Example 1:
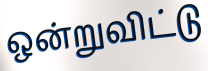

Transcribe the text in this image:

ஒன்றுவிட்டு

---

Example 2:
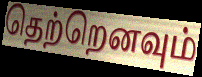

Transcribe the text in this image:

தெற்றெனவும்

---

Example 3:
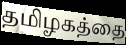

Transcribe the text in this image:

தமிழகத்தை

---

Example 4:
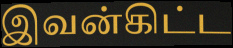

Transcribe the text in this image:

இவன்கிட்ட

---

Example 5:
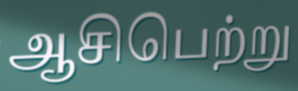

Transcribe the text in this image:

ஆசிபெற்று